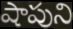
షాపుని